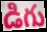
డిగు